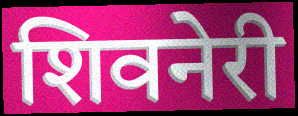
शिवनेरी